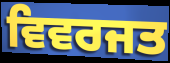
ਵਿਵਰਜਤ